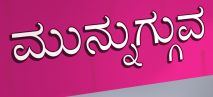
ಮುನ್ನುಗ್ಗುವ